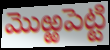
మొఱ్ఱపెట్టి